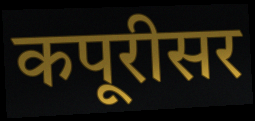
कपूरीसर